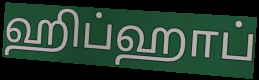
ஹிப்ஹாப்